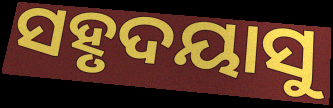
ସହୃଦୟାସୁ